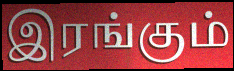
இரங்கும்